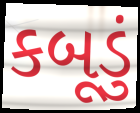
કબૂડું